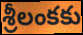
శ్రీలంకకు